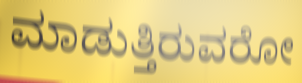
ಮಾಡುತ್ತಿರುವರೋ